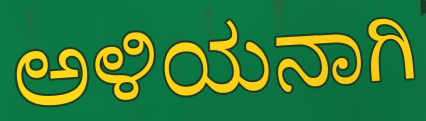
ಅಳಿಯನಾಗಿ